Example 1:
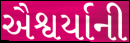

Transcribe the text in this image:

ઐશ્વર્યાની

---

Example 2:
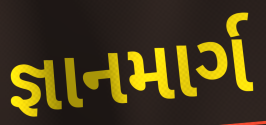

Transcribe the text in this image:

જ્ઞાનમાર્ગ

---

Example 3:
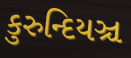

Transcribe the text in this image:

કુરુન્દિયઞ્ચ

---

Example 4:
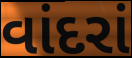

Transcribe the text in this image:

વાંદરાં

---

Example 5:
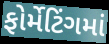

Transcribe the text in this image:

ફોર્મેટિંગમાં